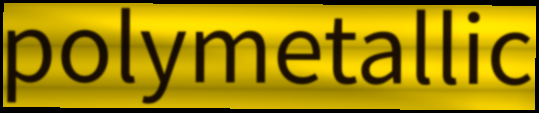
polymetallic